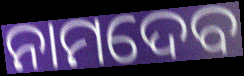
ନାମଦେବ